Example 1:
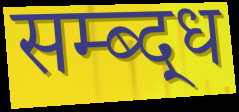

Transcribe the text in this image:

सम्ब्द्ध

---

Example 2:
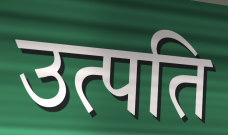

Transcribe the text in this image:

उत्पति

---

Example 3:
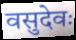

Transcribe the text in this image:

वसुदेवः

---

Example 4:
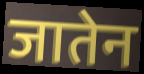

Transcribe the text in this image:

जातेन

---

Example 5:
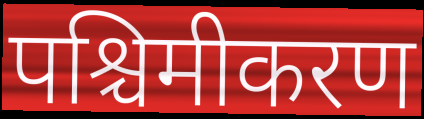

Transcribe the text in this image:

पश्चिमीकरण